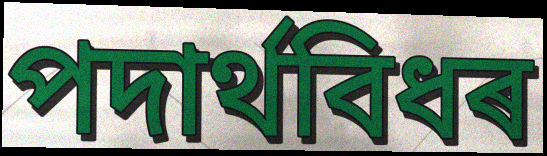
পদাৰ্থবিধৰ